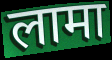
लामा